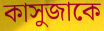
কাসুজাকে